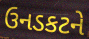
ઉનડકટને